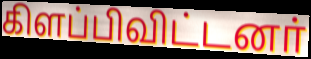
கிளப்பிவிட்டனர்